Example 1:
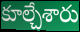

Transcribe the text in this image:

కూల్చేశారు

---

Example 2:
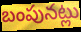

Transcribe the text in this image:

బంపునట్లు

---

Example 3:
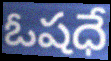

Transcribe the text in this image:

ఓషధే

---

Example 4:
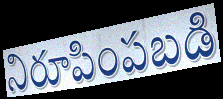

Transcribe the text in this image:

నిరూపింపబడి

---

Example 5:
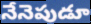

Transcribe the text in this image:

నేనెపుడూ